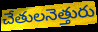
చేతులనెత్తురు